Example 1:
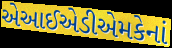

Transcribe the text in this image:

એઆઈએડીએમકેનાં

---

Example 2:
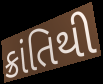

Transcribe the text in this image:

ક્રાંતિથી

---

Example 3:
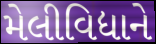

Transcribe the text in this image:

મેલીવિદ્યાને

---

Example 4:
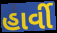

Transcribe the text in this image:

હાર્વી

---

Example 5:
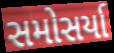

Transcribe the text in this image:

સમોસર્યા